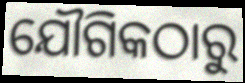
ଯୌଗିକଠାରୁ